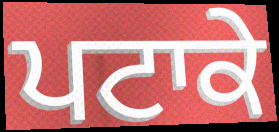
ਪਟਾਕੇ